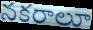
నకరాలూ